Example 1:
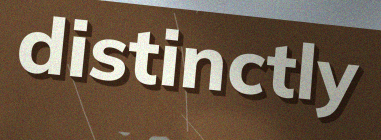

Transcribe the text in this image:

distinctly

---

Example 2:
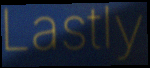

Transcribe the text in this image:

Lastly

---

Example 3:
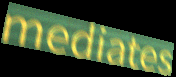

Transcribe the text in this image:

mediates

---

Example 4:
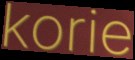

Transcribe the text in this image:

korie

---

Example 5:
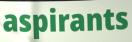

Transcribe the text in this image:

aspirants